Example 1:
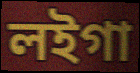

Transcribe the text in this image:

লইগা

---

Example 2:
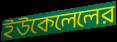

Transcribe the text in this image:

ইউকেলেলের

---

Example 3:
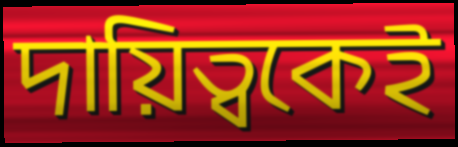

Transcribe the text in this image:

দায়িত্বকেই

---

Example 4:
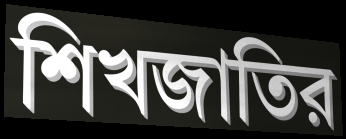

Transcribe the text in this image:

শিখজাতির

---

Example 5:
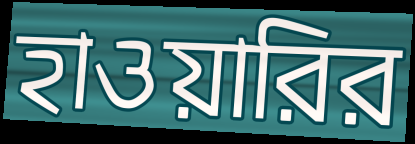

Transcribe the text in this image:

হাওয়ারির